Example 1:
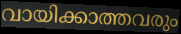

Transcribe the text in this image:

വായിക്കാത്തവരും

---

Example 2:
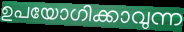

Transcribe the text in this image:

ഉപയോഗിക്കാവുന്ന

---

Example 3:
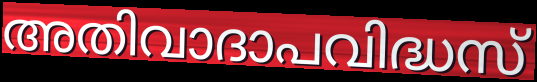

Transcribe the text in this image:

അതിവാദാപവിദ്ധസ്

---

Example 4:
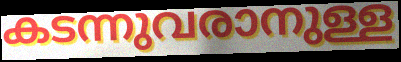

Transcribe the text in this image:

കടന്നുവരാനുള്ള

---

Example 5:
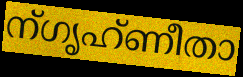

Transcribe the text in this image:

ന്ഗൃഹ്ണീതാ